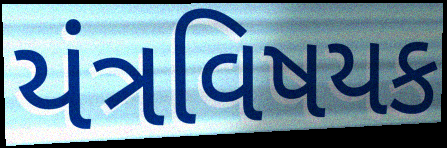
યંત્રવિષયક